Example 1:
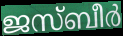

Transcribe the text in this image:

ജസ്ബീർ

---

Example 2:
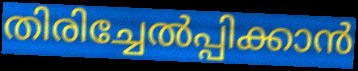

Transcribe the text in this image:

തിരിച്ചേൽപ്പിക്കാൻ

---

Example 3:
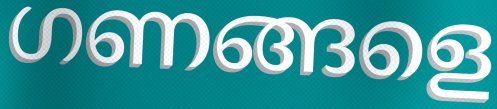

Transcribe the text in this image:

ഗണങ്ങളെ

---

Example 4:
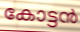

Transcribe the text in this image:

കോട്ടൻ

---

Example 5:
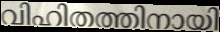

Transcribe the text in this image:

വിഹിതത്തിനായി